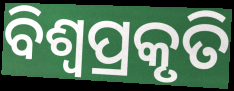
ବିଶ୍ଵପ୍ରକୃତି